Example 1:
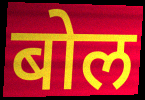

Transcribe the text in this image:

बोल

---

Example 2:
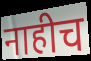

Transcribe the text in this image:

नाहीच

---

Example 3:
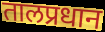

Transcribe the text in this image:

तालप्रधान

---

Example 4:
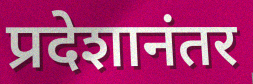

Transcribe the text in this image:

प्रदेशानंतर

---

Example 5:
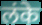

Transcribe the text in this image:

लंके